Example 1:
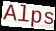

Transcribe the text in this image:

Alps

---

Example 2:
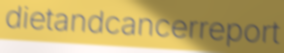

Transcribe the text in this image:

dietandcancerreport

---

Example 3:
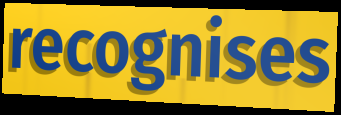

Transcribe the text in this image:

recognises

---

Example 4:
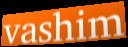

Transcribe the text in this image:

vashim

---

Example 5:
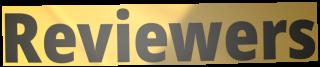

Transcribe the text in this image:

Reviewers